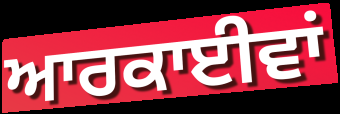
ਆਰਕਾਈਵਾਂ